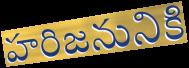
హరిజనునికి